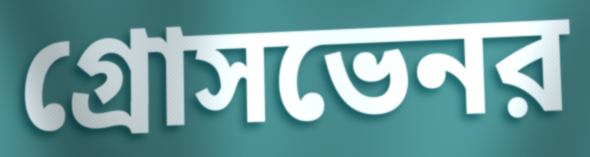
গ্রোসভেনর